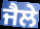
ਜੈਲੇ